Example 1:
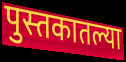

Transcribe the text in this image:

पुस्तकातल्या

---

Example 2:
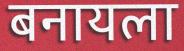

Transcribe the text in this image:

बनायला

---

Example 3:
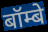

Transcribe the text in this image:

बॉम्बे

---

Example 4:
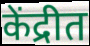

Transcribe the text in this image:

केंद्रीत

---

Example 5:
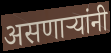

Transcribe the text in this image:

असणाऱ्यांनी